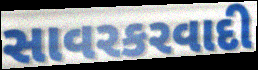
સાવરકરવાદી